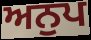
ਅਨੁਪ